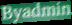
Byadmin